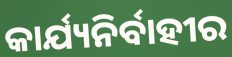
କାର୍ଯ୍ୟନିର୍ବାହୀର